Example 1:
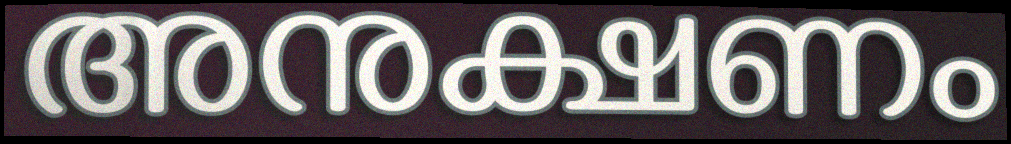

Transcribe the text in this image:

അനുക്ഷണം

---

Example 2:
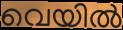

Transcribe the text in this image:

വെയിൽ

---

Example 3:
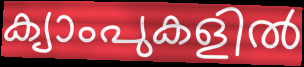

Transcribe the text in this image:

ക്യാംപുകളിൽ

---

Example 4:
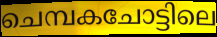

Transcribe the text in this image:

ചെമ്പകചോട്ടിലെ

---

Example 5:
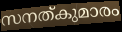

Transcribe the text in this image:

സനത്കുമാരം